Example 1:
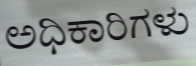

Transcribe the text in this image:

ಅಧಿಕಾರಿಗಳು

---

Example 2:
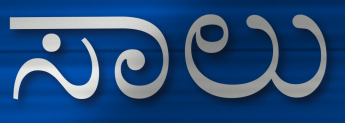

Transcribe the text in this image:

ಸಾಲು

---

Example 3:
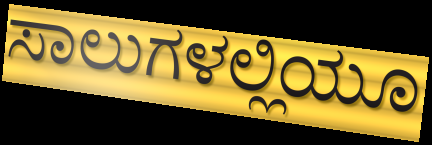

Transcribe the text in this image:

ಸಾಲುಗಳಲ್ಲಿಯೂ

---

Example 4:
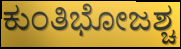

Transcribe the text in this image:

ಕುಂತಿಭೋಜಶ್ಚ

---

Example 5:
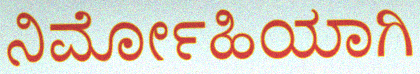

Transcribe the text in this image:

ನಿರ್ಮೋಹಿಯಾಗಿ